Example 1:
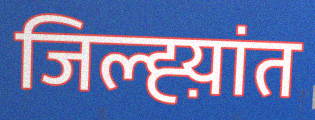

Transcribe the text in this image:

जिल्ह्य़ांत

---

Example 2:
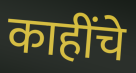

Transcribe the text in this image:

काहींचे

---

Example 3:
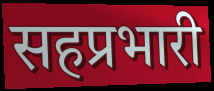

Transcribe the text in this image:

सहप्रभारी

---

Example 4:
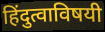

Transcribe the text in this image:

हिंदुत्वाविषयी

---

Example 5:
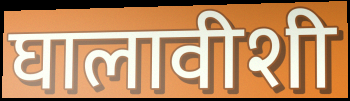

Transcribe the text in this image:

घालावीशी